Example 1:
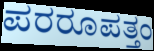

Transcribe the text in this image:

ಪರರೂಪತ್ತಂ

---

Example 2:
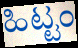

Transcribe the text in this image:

ಹಿಟ್ಟಂ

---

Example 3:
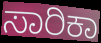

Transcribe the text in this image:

ಸಾರಿಕಾ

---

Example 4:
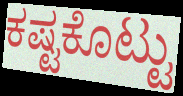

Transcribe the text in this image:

ಕಷ್ಟಕೊಟ್ಟು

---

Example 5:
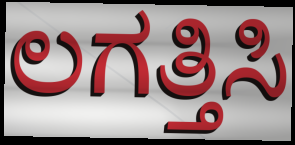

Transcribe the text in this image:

ಲಗತ್ತಿಸಿ